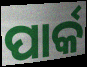
ପାର୍କ